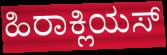
ಹಿರಾಕ್ಲಿಯಸ್